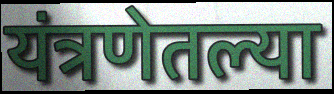
यंत्रणेतल्या